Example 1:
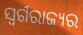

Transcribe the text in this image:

ସ୍ୱର୍ଗରାଜ୍ୟର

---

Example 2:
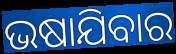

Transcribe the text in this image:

ଭଷାଯିବାର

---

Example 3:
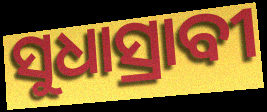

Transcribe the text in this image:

ସୁଧାସ୍ରାବୀ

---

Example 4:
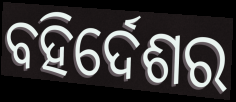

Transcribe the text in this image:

ବହିର୍ଦେଶର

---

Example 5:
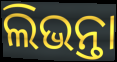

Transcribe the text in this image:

ଲିଭନ୍ତା